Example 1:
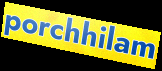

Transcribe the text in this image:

porchhilam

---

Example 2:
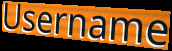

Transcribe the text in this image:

Username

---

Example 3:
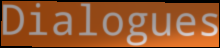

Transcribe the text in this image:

Dialogues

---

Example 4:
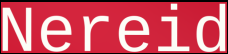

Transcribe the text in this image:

Nereid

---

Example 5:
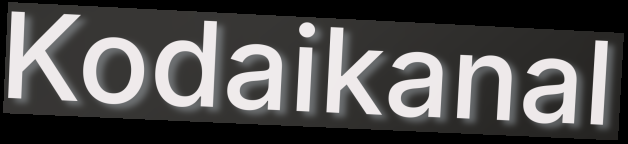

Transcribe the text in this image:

Kodaikanal